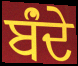
ਬਂੰਦੇ